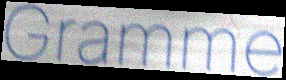
Gramme